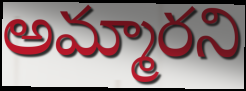
అమ్మారని